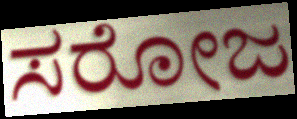
ಸರೋಜ